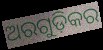
ଅରଗୁଡ଼ିକର